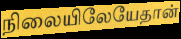
நிலையிலேயேதான்